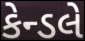
કેન્ડલે